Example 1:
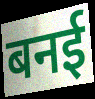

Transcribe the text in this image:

बनई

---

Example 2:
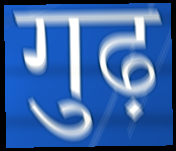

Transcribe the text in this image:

गुढ़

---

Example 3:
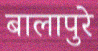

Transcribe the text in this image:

बालापुरे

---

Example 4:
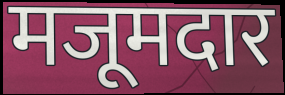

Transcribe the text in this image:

मजूमदार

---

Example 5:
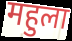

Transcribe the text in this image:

महुला